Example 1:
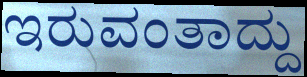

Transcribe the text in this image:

ಇರುವಂತಾದ್ದು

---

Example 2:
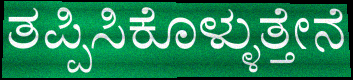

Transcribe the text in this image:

ತಪ್ಪಿಸಿಕೊಳ್ಳುತ್ತೇನೆ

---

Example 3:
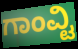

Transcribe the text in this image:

ಗಾಂವ್ಟಿ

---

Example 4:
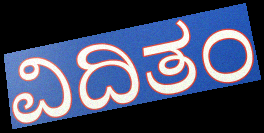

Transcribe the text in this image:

ವಿದಿತಂ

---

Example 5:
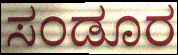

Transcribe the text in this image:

ಸಂಡೂರ